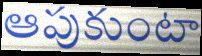
ఆపుకుంటా